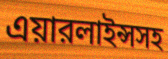
এয়ারলাইন্সসহ